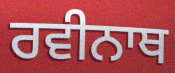
ਰਵੀਨਾਥ